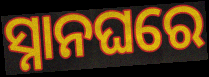
ସ୍ନାନଘରେ